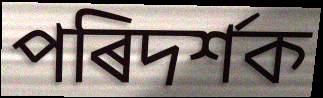
পৰিদৰ্শক